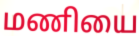
மணியை